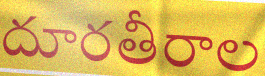
దూరతీరాల